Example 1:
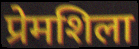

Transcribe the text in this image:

प्रेमशिला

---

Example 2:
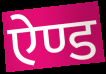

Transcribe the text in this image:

ऐण्ड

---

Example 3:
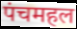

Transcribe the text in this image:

पंचमहल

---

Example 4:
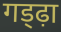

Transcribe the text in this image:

गड्ढ़ा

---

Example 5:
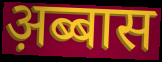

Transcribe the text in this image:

अ़ब्बास